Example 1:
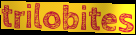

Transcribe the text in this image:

trilobites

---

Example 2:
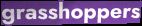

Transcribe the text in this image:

grasshoppers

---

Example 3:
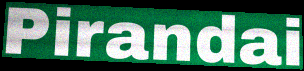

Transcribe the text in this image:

Pirandai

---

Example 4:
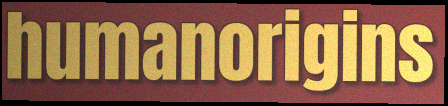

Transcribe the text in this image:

humanorigins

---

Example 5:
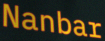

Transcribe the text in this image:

Nanbar